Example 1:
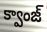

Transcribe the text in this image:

క్వాంజ్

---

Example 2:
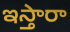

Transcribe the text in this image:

ఇస్తారా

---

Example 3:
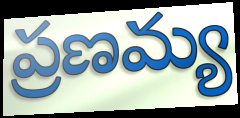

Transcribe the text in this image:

ప్రణమ్య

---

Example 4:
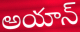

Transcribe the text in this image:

అయాన్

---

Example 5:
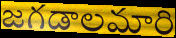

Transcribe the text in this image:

జగడాలమారి